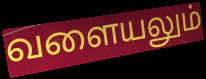
வளையலும்